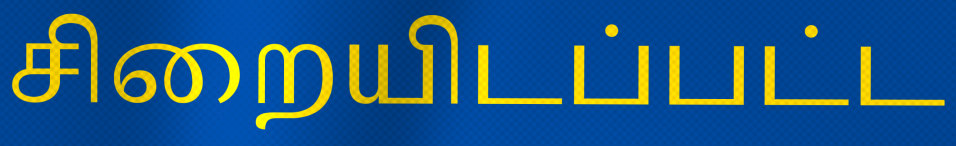
சிறையிடப்பட்ட